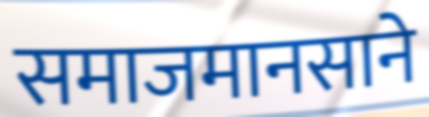
समाजमानसाने